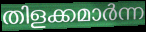
തിളക്കമാർന്ന